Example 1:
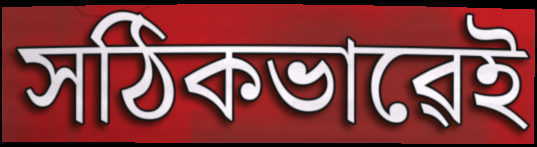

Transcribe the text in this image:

সঠিকভাৱেই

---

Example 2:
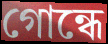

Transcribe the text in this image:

গোন্ধে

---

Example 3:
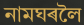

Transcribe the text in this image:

নামঘৰলৈ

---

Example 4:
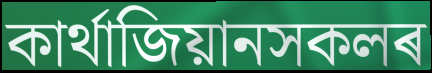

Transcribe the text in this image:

কাৰ্থাজিয়ানসকলৰ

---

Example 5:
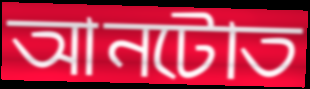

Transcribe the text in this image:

আনটোত